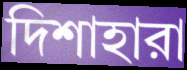
দিশাহারা